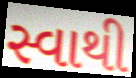
સ્વાથી